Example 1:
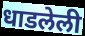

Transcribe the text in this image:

धाडलेली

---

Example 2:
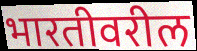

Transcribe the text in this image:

भारतीवरील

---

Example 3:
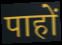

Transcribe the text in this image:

पाहों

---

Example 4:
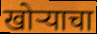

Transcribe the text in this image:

खोर्‍याचा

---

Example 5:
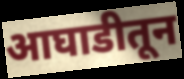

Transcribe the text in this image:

आघाडीतून